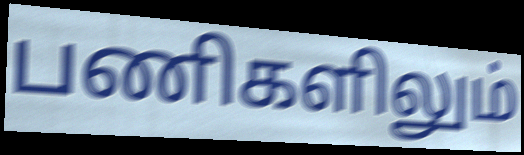
பணிகளிலும்